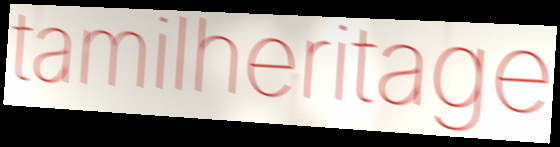
tamilheritage